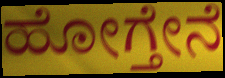
ಹೋಗ್ತೇನೆ